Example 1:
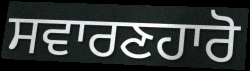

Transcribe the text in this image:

ਸਵਾਰਣਹਾਰੋ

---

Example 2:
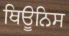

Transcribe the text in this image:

ਥਿਊਨਿਸ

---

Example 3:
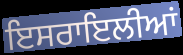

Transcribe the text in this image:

ਇਸਰਾਇਲੀਆਂ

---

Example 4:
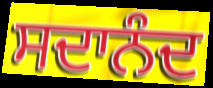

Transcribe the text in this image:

ਸਦਾਨੰਦ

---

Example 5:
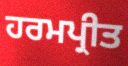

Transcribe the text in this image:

ਹਰਮਪ੍ਰੀਤ